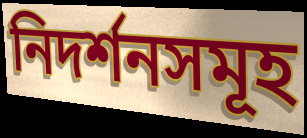
নিদর্শনসমূহ